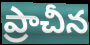
ప్రాచీన